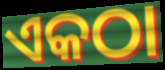
ଏକଠା